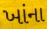
ખાંના